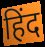
हिंद